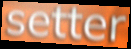
setter